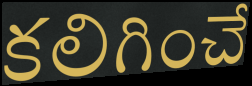
కలిగించే